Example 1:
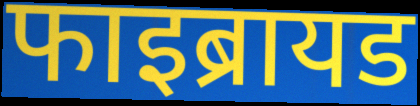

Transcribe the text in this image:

फाइब्रायड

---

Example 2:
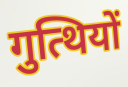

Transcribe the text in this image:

गुत्थियों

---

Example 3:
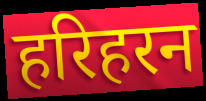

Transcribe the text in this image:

हरिहरन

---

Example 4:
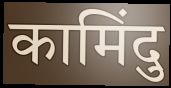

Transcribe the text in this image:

कामिंदु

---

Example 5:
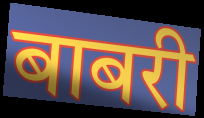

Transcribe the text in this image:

बाबरी